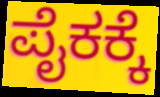
ಪೈಕಕ್ಕೆ